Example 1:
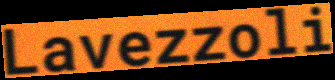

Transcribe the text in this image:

Lavezzoli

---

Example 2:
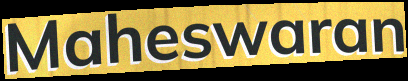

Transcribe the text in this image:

Maheswaran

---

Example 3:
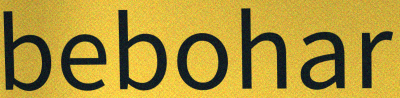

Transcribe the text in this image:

bebohar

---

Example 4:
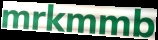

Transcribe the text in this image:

mrkmmb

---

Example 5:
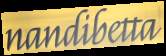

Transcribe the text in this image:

nandibetta